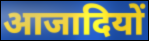
आजादियों